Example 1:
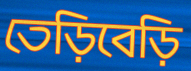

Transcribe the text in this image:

তেড়িবেড়ি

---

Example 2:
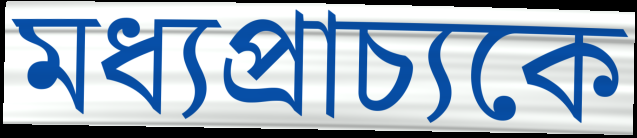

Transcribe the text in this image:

মধ্যপ্রাচ্যকে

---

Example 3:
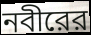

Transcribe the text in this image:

নবীরের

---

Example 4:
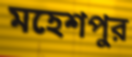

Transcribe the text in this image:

মহেশপুর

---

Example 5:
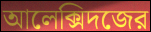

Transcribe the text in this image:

আলেক্সিদজের